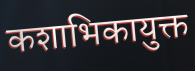
कशाभिकायुक्त